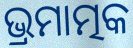
ଭ୍ରମାତ୍ମକ